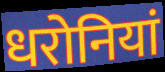
धरोनियां